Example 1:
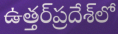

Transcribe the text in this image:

ఉత్తర్‌ప్రదేశ్‌లో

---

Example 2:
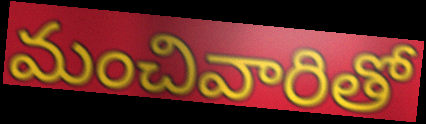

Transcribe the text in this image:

మంచివారితో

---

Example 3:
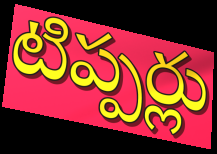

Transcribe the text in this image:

టిప్పర్లు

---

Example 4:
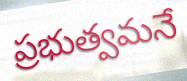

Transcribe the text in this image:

ప్రభుత్వమనే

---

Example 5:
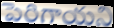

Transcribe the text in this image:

పెరిగాయని